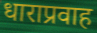
धाराप्रवाह